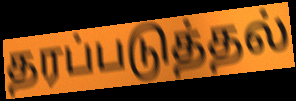
தரப்படுத்தல்